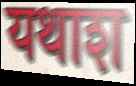
यथाश